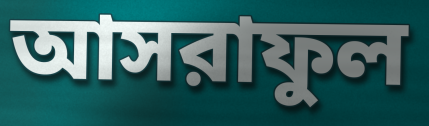
আসরাফুল